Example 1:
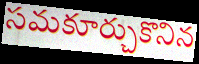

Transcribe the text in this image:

సమకూర్చుకొనిన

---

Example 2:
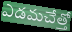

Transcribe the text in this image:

ఎడమచేత్తో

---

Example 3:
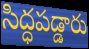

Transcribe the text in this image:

సిద్ధపడ్డారు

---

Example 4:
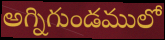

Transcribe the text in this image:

అగ్నిగుండములో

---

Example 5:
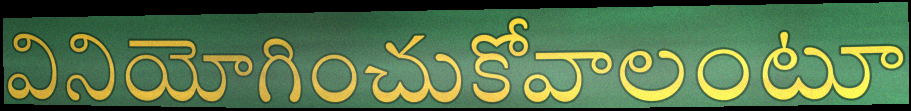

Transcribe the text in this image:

వినియోగించుకోవాలంటూ